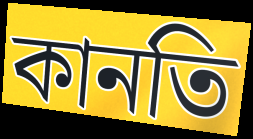
কানতি